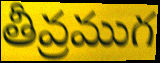
తీవ్రముగ